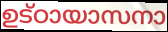
ഉട്ഠായാസനാ